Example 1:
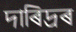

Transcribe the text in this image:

দাৰিদ্ৰৰ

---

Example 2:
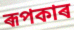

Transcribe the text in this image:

ৰূপকাৰ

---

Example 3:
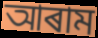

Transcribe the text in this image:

আৰাম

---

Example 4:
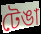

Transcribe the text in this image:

টেঙা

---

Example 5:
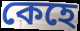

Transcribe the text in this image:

কেহে